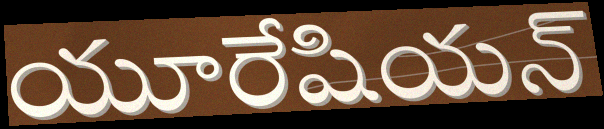
యూరేషియన్